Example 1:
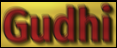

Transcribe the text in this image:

Gudhi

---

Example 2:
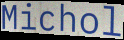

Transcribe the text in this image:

Michol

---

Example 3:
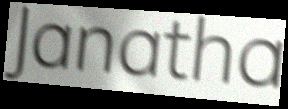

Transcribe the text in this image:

Janatha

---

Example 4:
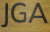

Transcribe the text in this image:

JGA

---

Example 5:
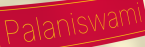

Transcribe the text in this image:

Palaniswami